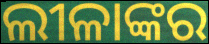
ଲୀଳାଙ୍କର